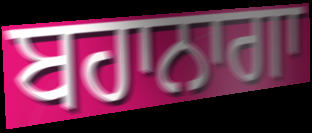
ਬਹਾਨਾਗਾ